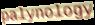
palynology